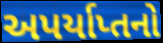
અપર્યાપ્તનો